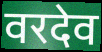
वरदेव